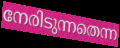
നേരിടുന്നതെന്ന